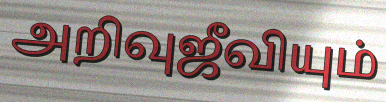
அறிவுஜீவியும்